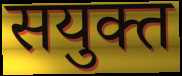
सयुक्त